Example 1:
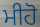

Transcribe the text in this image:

ਮੀਹੋ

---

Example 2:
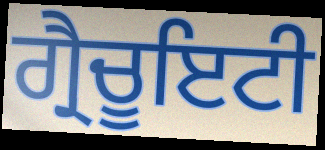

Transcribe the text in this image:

ਗ੍ਰੈਚੂਇਟੀ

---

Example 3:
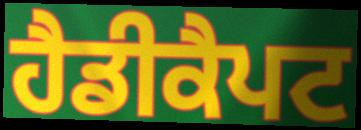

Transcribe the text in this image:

ਹੈਡੀਕੈਪਟ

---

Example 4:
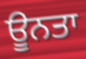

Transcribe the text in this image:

ਊਨਤਾ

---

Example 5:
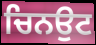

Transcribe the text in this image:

ਚਿਨਉਟ